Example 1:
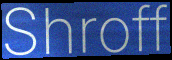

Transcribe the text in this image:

Shroff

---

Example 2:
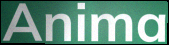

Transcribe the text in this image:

Anima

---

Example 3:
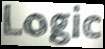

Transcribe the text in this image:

Logic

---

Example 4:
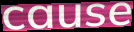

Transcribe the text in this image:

cause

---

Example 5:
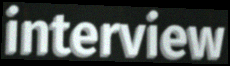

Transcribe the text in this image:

interview